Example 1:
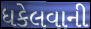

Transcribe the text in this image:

ધકેલવાની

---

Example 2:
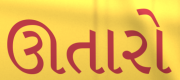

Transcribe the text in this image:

ઊતારો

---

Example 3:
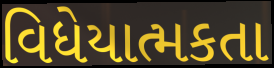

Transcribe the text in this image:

વિધેયાત્મકતા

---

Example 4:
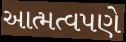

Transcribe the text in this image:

આત્મત્વપણે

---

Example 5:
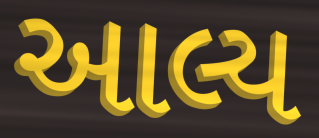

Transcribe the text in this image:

આલ્ય